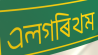
এলগৰিথম